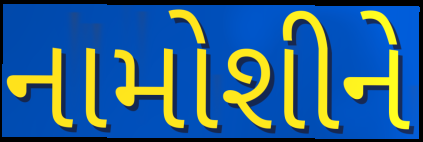
નામોશીને